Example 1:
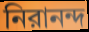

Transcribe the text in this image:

নিরানন্দ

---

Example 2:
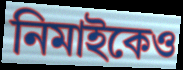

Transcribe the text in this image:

নিমাইকেও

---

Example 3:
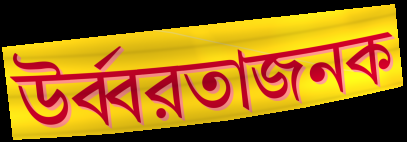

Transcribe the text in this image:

উর্ব্বরতাজনক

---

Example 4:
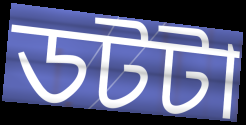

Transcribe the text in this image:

ডটটা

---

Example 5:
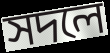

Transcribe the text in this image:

সদলে